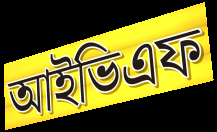
আইভিএফ